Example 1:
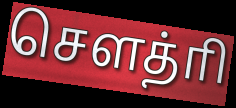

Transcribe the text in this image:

சௌத்ரி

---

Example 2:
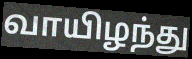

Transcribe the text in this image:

வாயிழந்து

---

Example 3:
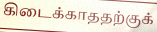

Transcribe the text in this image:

கிடைக்காததற்குக்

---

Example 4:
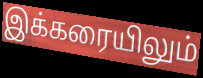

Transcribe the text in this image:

இக்கரையிலும்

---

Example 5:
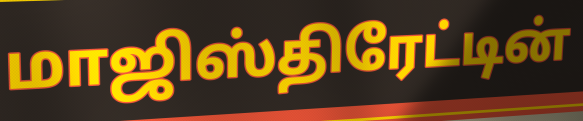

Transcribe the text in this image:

மாஜிஸ்திரேட்டின்